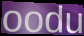
oodu